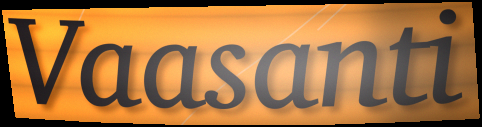
Vaasanti